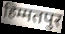
हिम्मतपुर